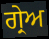
ਗ੍ਰੇਅ